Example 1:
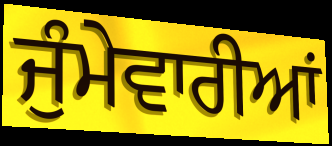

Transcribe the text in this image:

ਜੁੰਮੇਵਾਰੀਆਂ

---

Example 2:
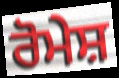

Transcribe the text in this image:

ਰੋਮੇਸ਼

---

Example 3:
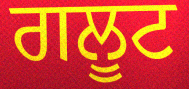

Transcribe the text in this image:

ਗਲੂਟ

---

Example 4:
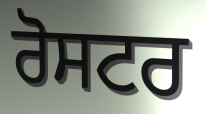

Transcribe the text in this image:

ਰੋਸਟਰ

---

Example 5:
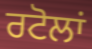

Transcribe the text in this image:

ਰਟੋਲਾਂ